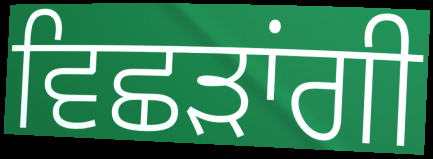
ਵਿਛੜਾਂਗੀ